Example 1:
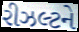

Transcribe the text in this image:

રીઝલ્ટને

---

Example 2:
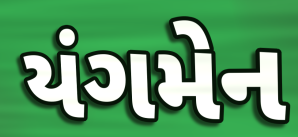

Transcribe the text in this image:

યંગમેન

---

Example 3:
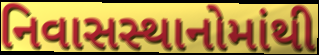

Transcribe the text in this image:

નિવાસસ્થાનોમાંથી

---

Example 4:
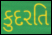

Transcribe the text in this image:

કુદરતિ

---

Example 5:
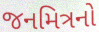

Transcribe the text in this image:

જનમિત્રનો